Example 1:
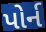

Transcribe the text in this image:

પોર્ન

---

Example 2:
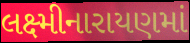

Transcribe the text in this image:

લક્ષ્મીનારાયણમાં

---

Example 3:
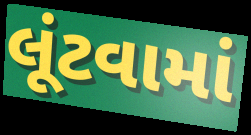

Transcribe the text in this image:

લૂંટવામાં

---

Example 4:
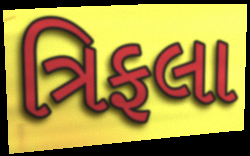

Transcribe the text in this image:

ત્રિફલા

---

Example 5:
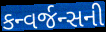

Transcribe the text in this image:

કન્વર્જન્સની